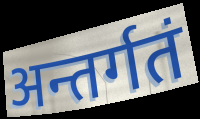
अन्तर्गतं